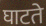
घाटते